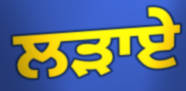
ਲੜਾਏ